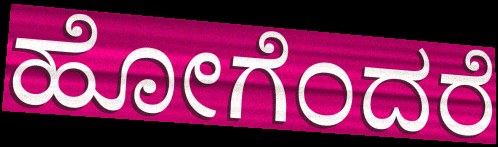
ಹೋಗೆಂದರೆ